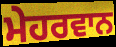
ਮੇਹਰਵਾਨ